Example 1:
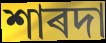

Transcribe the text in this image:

শাৰদা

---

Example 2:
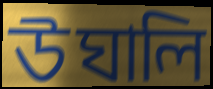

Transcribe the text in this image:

উঘালি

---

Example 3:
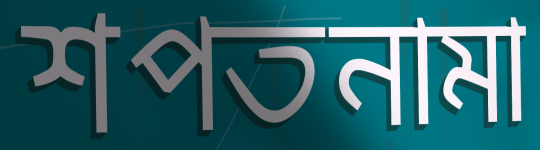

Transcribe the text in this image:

শপতনামা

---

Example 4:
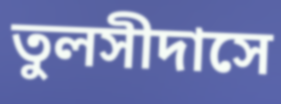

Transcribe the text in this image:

তুলসীদাসে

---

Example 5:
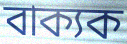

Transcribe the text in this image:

বাক্যক